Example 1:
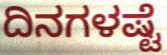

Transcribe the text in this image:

ದಿನಗಳಷ್ಟೆ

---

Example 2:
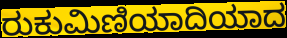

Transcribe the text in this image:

ರುಕುಮಿಣಿಯಾದಿಯಾದ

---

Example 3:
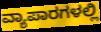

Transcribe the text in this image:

ವ್ಯಾಪಾರಗಳಲ್ಲಿ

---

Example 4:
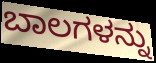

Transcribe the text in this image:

ಬಾಲಗಳನ್ನು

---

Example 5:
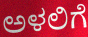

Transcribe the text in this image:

ಅಳಲಿಗೆ